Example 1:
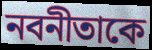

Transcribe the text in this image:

নবনীতাকে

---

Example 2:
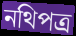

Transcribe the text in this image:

নথিপত্র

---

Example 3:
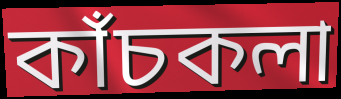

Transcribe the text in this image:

কাঁচকলা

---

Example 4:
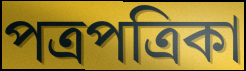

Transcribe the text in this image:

পত্রপত্রিকা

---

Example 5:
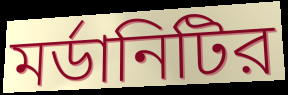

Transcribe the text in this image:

মর্ডানিটির